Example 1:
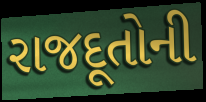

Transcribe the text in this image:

રાજદૂતોની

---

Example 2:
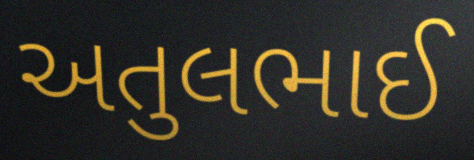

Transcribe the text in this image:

અતુલભાઈ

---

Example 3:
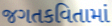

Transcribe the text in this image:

જગતકવિતામાં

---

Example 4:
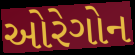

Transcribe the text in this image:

ઓરેગોન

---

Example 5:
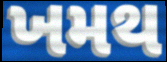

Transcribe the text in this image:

ખમથ